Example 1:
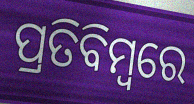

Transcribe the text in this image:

ପ୍ରତିବିମ୍ବରେ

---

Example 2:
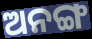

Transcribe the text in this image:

ଅନଙ୍ଗ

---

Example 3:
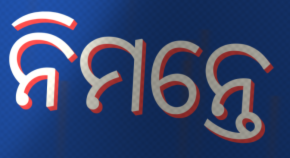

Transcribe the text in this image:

ନିମନ୍ତେ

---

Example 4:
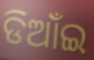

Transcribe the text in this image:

ଡିଆଁଇ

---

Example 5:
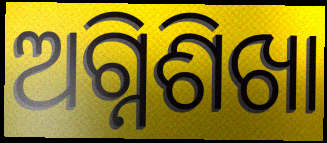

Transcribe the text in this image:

ଅଗ୍ନିଶିଖା